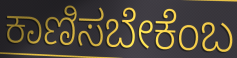
ಕಾಣಿಸಬೇಕೆಂಬ